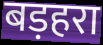
बड़हरा